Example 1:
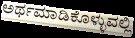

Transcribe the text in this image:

ಅರ್ಥಮಾಡಿಕೊಳ್ಳುವಲ್ಲಿ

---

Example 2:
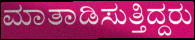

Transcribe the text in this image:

ಮಾತಾಡಿಸುತ್ತಿದ್ದರು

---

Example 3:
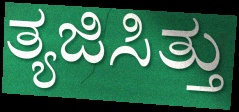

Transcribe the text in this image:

ತ್ಯಜಿಸಿತ್ತು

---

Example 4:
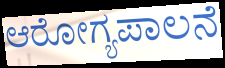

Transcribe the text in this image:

ಆರೋಗ್ಯಪಾಲನೆ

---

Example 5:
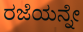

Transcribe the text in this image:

ರಜೆಯನ್ನೇ